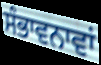
ਸੰਭਾਵਨਾਵਾਂ